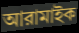
আরামাইক